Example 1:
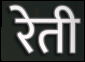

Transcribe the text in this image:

रेती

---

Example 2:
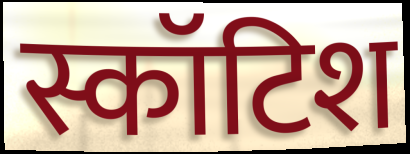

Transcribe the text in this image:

स्कॉटिश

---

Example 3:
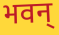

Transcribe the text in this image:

भवन्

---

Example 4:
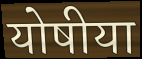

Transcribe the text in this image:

योषीया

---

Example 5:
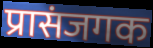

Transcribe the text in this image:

प्रासंजगक